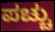
ಪಚ್ಚು